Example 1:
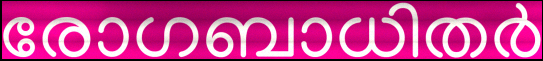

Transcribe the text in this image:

രോഗബാധിതർ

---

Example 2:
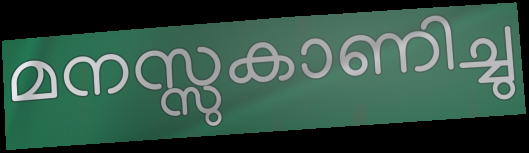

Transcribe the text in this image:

മനസ്സുകാണിച്ചു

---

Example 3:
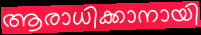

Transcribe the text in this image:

ആരാധിക്കാനായി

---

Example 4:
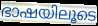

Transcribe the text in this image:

ഭാഷയിലൂടെ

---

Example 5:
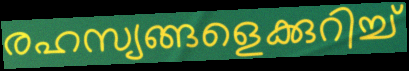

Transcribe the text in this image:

രഹസ്യങ്ങളെക്കുറിച്ച്